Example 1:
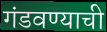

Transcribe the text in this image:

गंडवण्याची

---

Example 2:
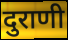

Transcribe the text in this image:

दुराणी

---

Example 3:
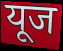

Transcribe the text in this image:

यूज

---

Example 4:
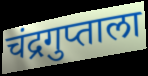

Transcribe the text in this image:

चंद्रगुप्ताला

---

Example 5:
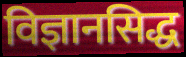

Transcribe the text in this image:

विज्ञानसिद्ध